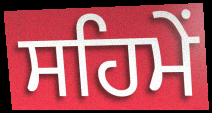
ਸਹਿਮੇਂ